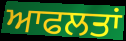
ਆਫਲਤਾਂ